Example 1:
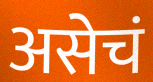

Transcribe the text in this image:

असेचं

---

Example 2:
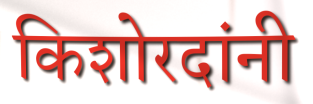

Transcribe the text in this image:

किशोरदांनी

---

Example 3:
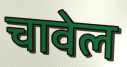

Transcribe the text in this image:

चावेल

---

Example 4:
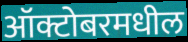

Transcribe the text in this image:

ऑक्टोबरमधील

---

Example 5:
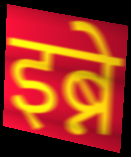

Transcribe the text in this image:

इब्ने